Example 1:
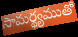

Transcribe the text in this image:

సామర్థ్యముతో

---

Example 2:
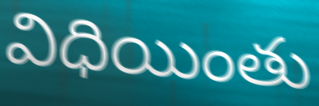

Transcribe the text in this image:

విధియింతు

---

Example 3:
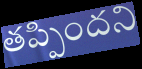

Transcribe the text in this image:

తప్పిందని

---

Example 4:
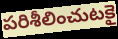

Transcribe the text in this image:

పరిశీలించుటకై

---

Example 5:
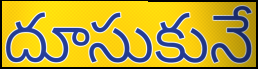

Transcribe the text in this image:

దూసుకునే